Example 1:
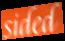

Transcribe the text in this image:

sided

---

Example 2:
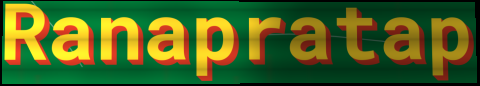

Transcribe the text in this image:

Ranapratap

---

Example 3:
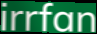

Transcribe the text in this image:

irrfan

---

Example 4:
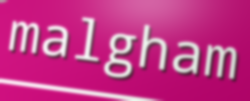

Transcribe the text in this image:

malgham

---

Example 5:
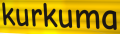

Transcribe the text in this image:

kurkuma